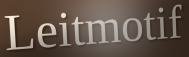
Leitmotif